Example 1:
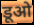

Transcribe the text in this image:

डूओ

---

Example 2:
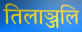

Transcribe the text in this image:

तिलाञ्जलि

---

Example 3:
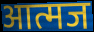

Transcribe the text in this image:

आत्मज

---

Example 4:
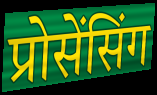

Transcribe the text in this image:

प्रोसेंसिंग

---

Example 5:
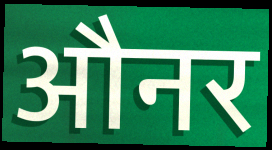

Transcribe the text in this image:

औनर